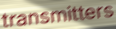
transmitters